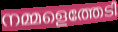
നമ്മളെത്തേടി